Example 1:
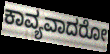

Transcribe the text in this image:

ಕಾವ್ಯವಾದರೋ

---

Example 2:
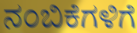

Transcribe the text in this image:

ನಂಬಿಕೆಗಳಿಗೆ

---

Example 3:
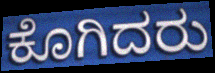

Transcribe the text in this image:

ಕೊಗಿದರು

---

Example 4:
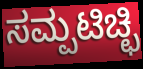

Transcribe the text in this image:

ಸಮ್ಪಟಿಚ್ಛಿ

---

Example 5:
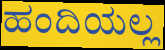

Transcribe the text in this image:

ಹಂದಿಯಲ್ಲ